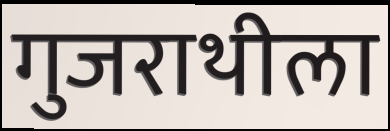
गुजराथीला